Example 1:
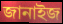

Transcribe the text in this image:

জানাইজ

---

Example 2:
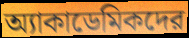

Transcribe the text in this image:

অ্যাকাডেমিকদের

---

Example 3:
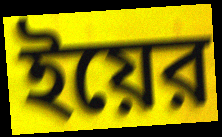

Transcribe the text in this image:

ইয়ের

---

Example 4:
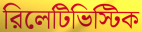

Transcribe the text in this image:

রিলেটিভিস্টিক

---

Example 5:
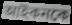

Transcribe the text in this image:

আইকনকে